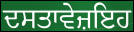
ਦਸਤਾਵੇਜ਼ਇਹ